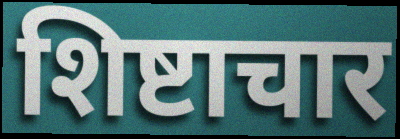
शिष्टाचार